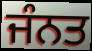
ਜੰਨਤ